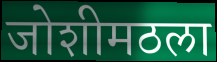
जोशीमठला